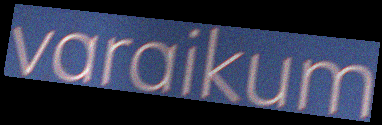
varaikum